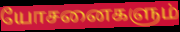
யோசனைகளும்